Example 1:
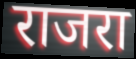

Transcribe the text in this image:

राजरा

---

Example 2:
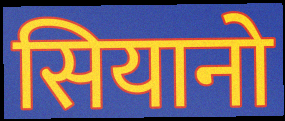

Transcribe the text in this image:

सियानो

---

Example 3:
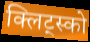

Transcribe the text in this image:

क्लिट्स्को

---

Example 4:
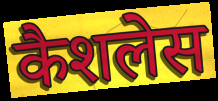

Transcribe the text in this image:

कैशलेस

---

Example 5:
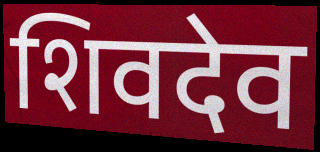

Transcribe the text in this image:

शिवदेव